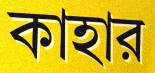
কাহার